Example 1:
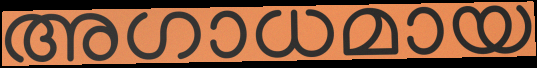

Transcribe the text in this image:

അഗാധമായ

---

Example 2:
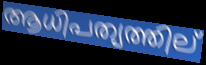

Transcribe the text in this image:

ആധിപത്യത്തില്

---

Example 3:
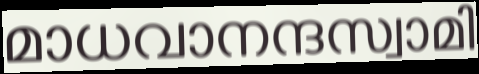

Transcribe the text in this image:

മാധവാനന്ദസ്വാമി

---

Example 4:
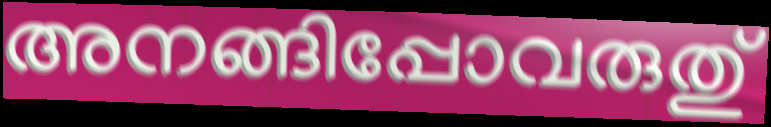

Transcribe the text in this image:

അനങ്ങിപ്പോവരുതു്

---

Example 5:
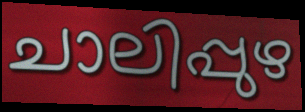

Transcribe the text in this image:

ചാലിപ്പുഴ